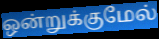
ஒன்றுக்குமேல்